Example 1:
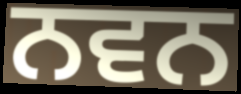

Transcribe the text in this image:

ਨਵਨ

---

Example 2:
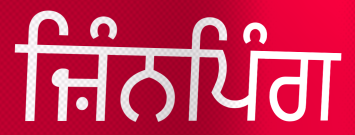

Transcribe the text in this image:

ਜ਼ਿੰਨਪਿੰਗ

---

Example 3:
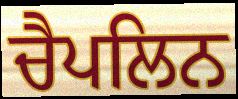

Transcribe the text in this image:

ਚੈਪਲਿਨ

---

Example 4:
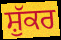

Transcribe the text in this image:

ਸ਼ੁੱਕਰ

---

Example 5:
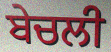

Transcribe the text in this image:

ਬੇਚਲੀ